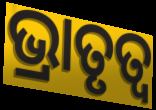
ଭ୍ରାତୃତ୍ଵ